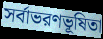
সর্বাভরণভূষিতা